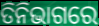
ତିନିଭାଗରେ